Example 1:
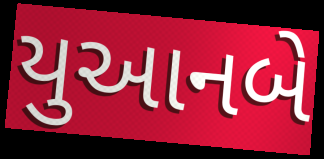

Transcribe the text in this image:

યુઆનબે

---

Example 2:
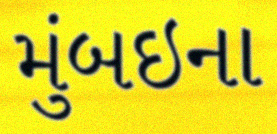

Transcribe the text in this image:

મુંબઇના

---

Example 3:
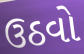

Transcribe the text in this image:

ઉઠવો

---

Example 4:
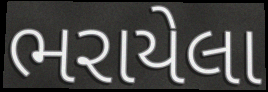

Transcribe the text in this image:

ભરાયેલા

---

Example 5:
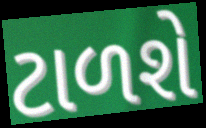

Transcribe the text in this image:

ટાળશે